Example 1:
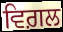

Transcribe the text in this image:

ਵਿਗ਼ਲ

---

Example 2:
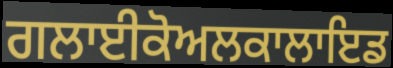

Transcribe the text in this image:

ਗਲਾਈਕੋਅਲਕਾਲਾਇਡ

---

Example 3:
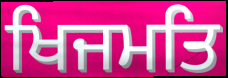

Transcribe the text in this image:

ਖਿਜਮਤਿ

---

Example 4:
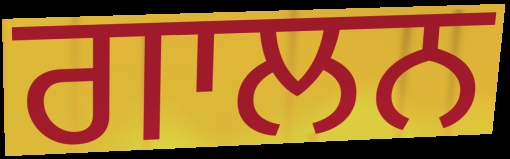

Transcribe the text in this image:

ਗਾਲਨ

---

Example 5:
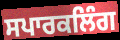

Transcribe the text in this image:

ਸਪਾਰਕਲਿੰਗ